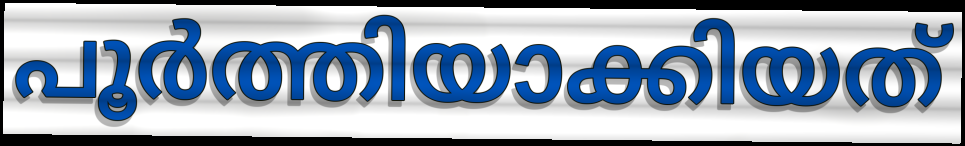
പൂർത്തിയാക്കിയത്